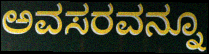
ಅವಸರವನ್ನೂ